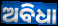
ଅବିଧା